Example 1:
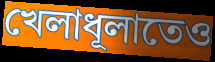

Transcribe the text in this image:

খেলাধূলাতেও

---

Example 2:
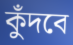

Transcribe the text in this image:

কুঁদবে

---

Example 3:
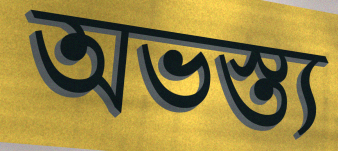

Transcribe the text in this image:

অভস্ত্য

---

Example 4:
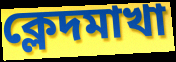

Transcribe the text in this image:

ক্লেদমাখা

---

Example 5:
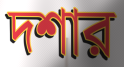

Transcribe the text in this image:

দশার